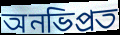
অনভিপ্রত